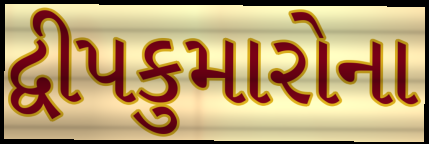
દ્વીપકુમારોના